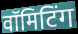
वॉमिटिंग